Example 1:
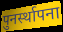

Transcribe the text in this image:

पुनर्स्थापना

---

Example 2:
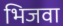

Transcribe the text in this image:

भिजवा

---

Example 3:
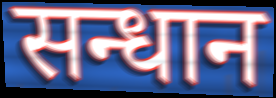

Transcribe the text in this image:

सन्धान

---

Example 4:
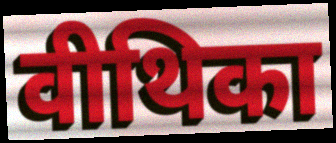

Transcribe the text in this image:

वीथिका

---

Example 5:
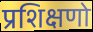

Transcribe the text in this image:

प्रशिक्षणो